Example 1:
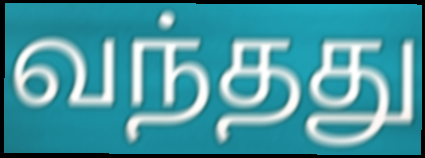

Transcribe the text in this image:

வந்தது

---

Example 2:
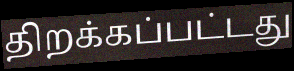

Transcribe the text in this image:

திறக்கப்பட்டது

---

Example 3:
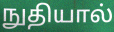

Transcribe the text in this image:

நுதியால்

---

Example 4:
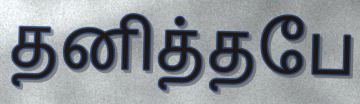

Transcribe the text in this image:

தனித்தபே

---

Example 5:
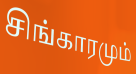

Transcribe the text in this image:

சிங்காரமும்